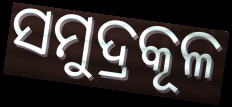
ସମୁଦ୍ରକୂଳ